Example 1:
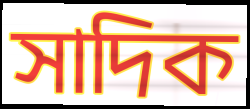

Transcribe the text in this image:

সাদিক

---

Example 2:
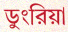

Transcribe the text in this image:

ডুংরিয়া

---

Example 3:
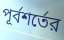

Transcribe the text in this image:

পূর্বশর্তের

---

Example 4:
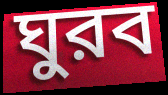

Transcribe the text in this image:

ঘুরব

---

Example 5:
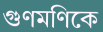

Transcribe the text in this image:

গুণমণিকে